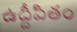
ఉద్దీపితం